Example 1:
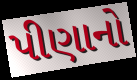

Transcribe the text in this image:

પીણાનો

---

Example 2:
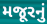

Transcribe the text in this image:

મજૂરનું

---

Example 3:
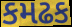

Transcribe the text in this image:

કમઢક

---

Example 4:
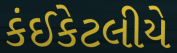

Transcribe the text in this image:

કંઈકેટલીયે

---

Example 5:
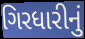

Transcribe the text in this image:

ગિરધારીનું